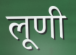
लूणी